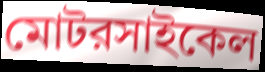
মোটরসাইকেল